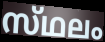
സ്‌ഥലം